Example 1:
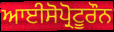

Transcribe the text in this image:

ਆਈਸੋਪ੍ਰੋਟੂਰੌਨ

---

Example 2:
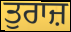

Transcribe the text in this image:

ਤੁਰਾਜ਼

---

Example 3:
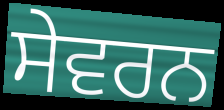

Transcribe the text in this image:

ਸੇਵਰਨ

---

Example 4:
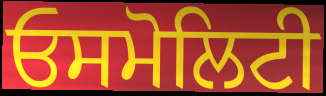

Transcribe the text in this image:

ਓਸਮੋਲਿਟੀ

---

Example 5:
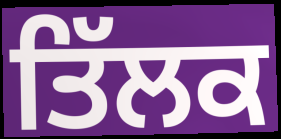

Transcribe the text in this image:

ਤਿੱਲਕ